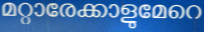
മറ്റാരേക്കാളുമേറെ